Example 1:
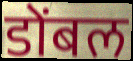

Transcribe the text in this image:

डोंबल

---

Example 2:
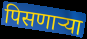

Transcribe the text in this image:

पिसणाऱ्या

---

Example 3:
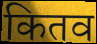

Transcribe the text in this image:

कितव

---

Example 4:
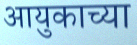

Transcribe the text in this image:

आयुकाच्या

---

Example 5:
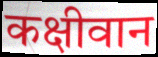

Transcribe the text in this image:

कक्षीवान